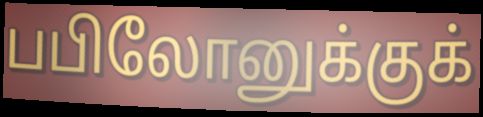
பபிலோனுக்குக்